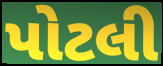
પોટલી